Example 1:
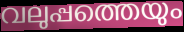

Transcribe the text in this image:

വലുപ്പത്തെയും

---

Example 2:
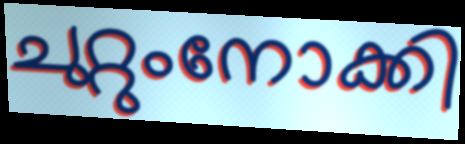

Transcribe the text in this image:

ചുറ്റുംനോക്കി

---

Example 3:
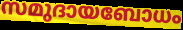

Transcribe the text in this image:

സമുദായബോധം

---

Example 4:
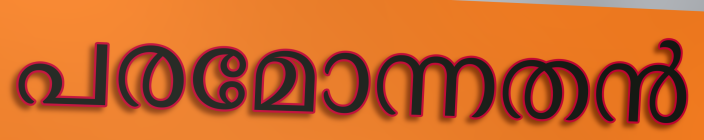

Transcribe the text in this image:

പരമോന്നതൻ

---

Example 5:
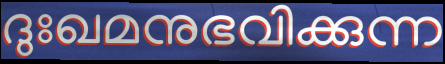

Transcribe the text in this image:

ദുഃഖമനുഭവിക്കുന്ന